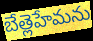
బేత్లెహేమను